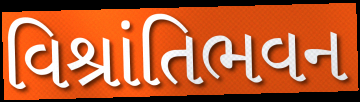
વિશ્રાંતિભવન